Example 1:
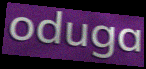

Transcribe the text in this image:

oduga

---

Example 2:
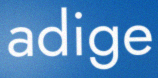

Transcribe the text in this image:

adige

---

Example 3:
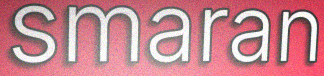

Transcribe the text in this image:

smaran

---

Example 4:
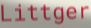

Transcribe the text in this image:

Littger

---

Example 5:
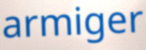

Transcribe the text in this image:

armiger